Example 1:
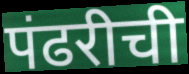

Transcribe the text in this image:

पंढरीची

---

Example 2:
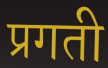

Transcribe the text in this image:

प्रगती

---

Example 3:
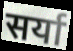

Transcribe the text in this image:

सर्या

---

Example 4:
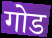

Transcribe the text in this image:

गोड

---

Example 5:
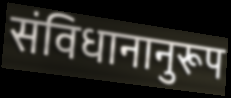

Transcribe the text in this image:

संविधानानुरूप